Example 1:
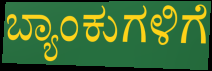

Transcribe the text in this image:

ಬ್ಯಾಂಕುಗಳಿಗೆ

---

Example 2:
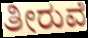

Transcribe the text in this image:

ತೀರುವೆ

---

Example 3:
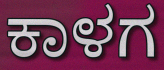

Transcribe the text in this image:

ಕಾಳಗ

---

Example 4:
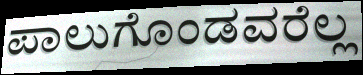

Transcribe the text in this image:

ಪಾಲುಗೊಂಡವರೆಲ್ಲ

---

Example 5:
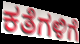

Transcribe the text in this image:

ಕತೆಗಳಿಗೆ